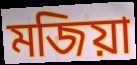
মজিয়া